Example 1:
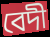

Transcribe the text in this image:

বেদী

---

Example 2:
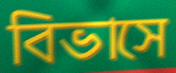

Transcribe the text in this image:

বিভাসে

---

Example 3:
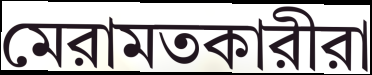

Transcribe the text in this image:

মেরামতকারীরা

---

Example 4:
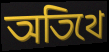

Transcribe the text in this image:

অতিথে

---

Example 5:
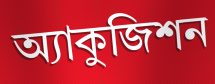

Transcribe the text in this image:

অ্যাকুজিশন